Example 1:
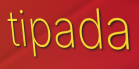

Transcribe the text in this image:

tipada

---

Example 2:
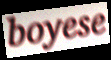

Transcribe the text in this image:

boyese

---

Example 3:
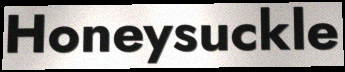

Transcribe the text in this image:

Honeysuckle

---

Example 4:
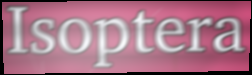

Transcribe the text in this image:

Isoptera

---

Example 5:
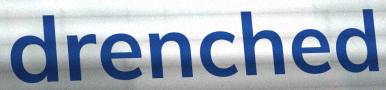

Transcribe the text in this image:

drenched